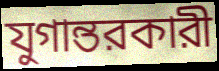
যুগান্তরকারী